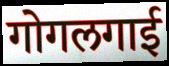
गोगलगाई